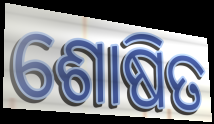
ଶୋଷିତ